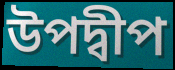
উপদ্বীপ